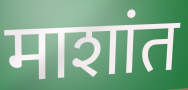
माशांत